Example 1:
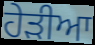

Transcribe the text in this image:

ਹੇੜੀਆ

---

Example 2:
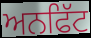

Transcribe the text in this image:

ਅਨਫਿੱਟ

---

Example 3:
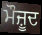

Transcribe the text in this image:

ਮੌਜ਼ੂਦ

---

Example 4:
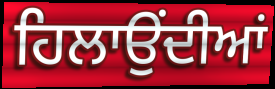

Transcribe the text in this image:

ਹਿਲਾਉਂਦੀਆਂ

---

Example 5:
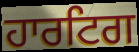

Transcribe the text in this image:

ਹਾਰਟਿਗ